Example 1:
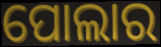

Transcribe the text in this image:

ପୋଲାର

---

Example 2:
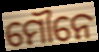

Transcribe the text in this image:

ମୌନେ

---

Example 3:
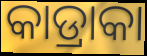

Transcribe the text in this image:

କାଡ୍ରାକା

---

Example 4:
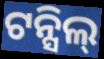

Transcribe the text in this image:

ଟନ୍ସିଲ୍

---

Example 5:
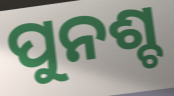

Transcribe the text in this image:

ପୁନଶ୍ଚ